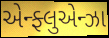
એન્ફ્લુએન્ઝા